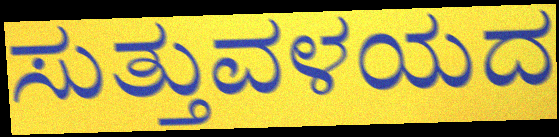
ಸುತ್ತುವಳಯದ